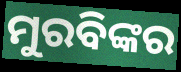
ମୁରବିଙ୍କର